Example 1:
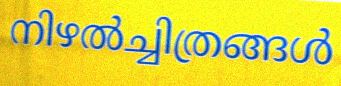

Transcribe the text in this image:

നിഴൽച്ചിത്രങ്ങൾ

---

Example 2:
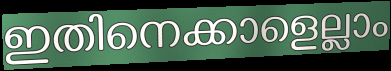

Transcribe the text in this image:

ഇതിനെക്കാളെല്ലാം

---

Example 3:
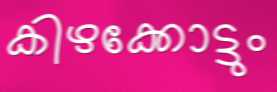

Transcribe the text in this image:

കിഴക്കോട്ടും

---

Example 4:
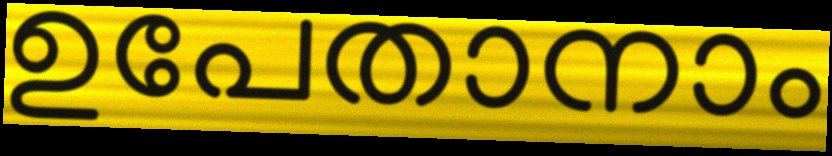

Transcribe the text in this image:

ഉപേതാനാം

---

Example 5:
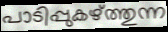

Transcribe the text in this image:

പാടിപ്പുകഴ്ത്തുന്ന